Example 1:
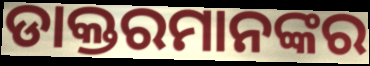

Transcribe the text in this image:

ଡାକ୍ତରମାନଙ୍କର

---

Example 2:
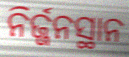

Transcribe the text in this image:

ନିର୍ଜ୍ଜନସ୍ଥାନ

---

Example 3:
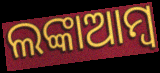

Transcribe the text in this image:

ଲଙ୍କାଆମ୍ବ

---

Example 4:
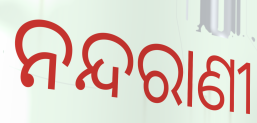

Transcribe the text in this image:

ନନ୍ଦରାଣୀ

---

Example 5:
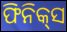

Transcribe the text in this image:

ଫିନିକ୍‌ସ